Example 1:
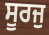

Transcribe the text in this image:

ਸੂਰਜੁ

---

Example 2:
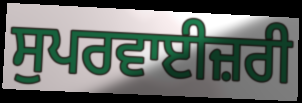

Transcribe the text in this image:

ਸੁਪਰਵਾਈਜ਼ਰੀ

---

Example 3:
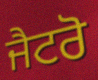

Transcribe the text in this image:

ਜੈਟਰੋ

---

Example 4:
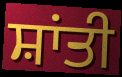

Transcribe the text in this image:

ਸ਼ਾਂਤੀ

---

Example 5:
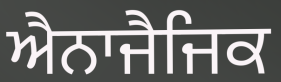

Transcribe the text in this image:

ਐਨਾਜੈਜਿਕ